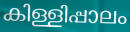
കിള്ളിപ്പാലം